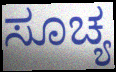
ಸೂಚ್ಯ